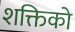
शक्तिको